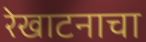
रेखाटनाचा